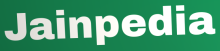
Jainpedia